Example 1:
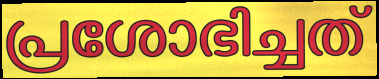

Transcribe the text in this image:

പ്രശോഭിച്ചത്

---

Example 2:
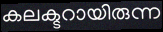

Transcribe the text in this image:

കലക്ടറായിരുന്ന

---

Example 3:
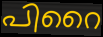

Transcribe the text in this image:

പിറൈ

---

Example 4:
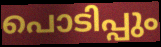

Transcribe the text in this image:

പൊടിപ്പും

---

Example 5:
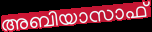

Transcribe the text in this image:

അബിയാസാഫ്